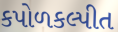
કપોળકલ્પીત